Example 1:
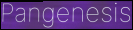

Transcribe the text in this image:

Pangenesis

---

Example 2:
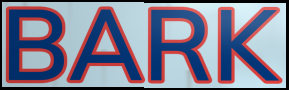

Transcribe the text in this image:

BARK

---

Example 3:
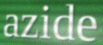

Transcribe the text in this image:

azide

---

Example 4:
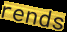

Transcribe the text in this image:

rends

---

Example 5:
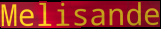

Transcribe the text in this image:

Melisande